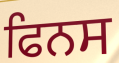
ਫਿਨਸ